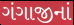
ગંગાજીનાં